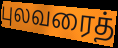
புலவரைத்